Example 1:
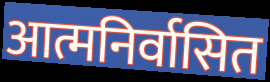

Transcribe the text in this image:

आत्मनिर्वासित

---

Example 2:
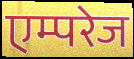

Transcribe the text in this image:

एम्परेज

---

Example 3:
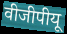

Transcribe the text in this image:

वीजीपीयू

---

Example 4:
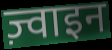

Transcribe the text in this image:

ज़्वाइन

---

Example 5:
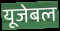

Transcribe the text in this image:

यूजेबल